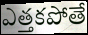
ఎత్తకపోతే